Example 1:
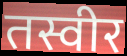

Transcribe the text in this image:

तस्वीर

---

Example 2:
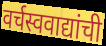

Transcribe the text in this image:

वर्चस्ववाद्यांची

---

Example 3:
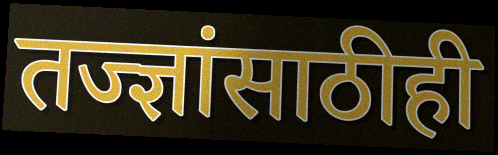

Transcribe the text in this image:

तज्ज्ञांसाठीही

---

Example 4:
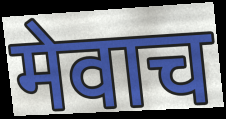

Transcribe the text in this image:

मेवाच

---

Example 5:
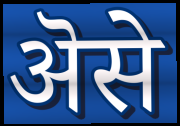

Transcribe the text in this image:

ऄसे